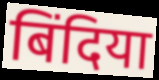
बिंदिया